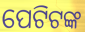
ପେଟିଟଙ୍କ